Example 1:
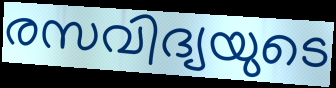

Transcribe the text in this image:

രസവിദ്യയുടെ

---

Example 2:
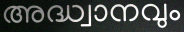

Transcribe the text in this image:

അദ്ധ്വാനവും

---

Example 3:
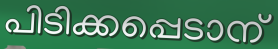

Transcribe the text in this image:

പിടിക്കപ്പെടാന്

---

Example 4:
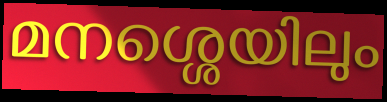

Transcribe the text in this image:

മനശ്ശെയിലും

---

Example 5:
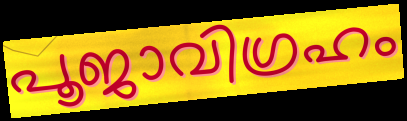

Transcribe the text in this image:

പൂജാവിഗ്രഹം